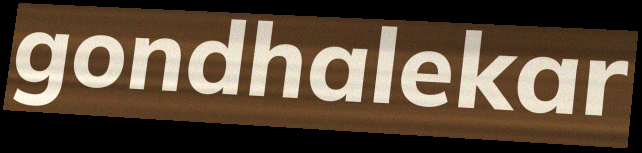
gondhalekar